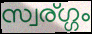
സ്വര്ഗ്ഗം